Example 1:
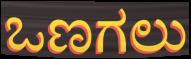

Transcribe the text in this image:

ಒಣಗಲು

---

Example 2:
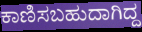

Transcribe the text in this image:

ಕಾಣಿಸಬಹುದಾಗಿದ್ದ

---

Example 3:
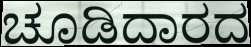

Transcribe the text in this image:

ಚೂಡಿದಾರದ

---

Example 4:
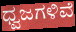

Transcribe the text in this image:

ಧ್ವಜಗಳಿವೆ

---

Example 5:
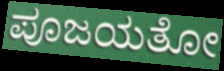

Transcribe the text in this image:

ಪೂಜಯತೋ